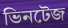
ভিনটেজ